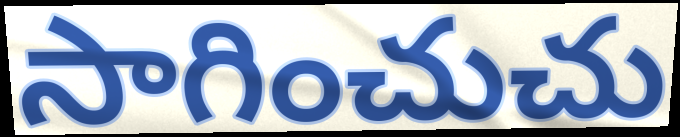
సాగించుచు